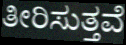
ತೀರಿಸುತ್ತವೆ